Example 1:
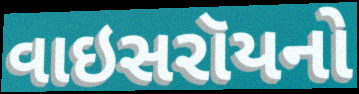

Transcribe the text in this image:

વાઇસરૉયનો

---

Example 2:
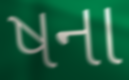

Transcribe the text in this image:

ષના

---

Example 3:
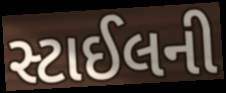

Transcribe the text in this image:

સ્ટાઈલની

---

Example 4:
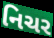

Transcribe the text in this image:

નિચર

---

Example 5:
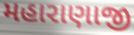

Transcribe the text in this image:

મહારાણાજી